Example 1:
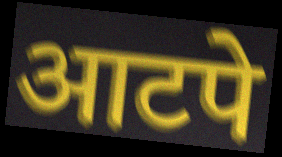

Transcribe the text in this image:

आटपे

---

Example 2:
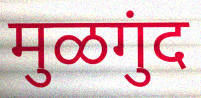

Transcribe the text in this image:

मुळगुंद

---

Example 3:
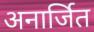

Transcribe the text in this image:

अनार्जित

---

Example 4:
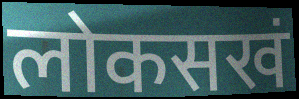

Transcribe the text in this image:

लोकसखं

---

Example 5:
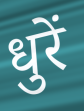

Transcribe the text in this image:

धुरें